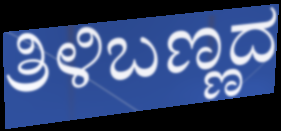
ತಿಳಿಬಣ್ಣದ